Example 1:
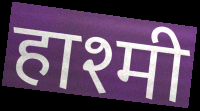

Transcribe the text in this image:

हाश्मी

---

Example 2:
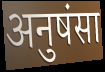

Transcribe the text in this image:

अनुषंसा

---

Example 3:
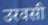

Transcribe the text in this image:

उरवसी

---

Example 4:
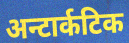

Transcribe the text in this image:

अन्टार्कटिक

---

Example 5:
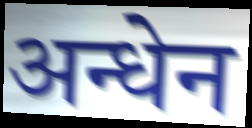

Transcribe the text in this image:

अन्धेन